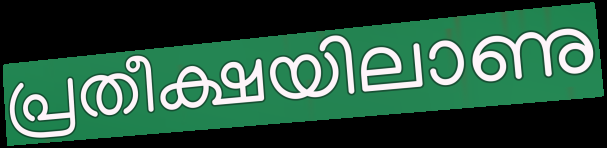
പ്രതീക്ഷയിലാണു